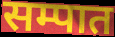
सम्पात